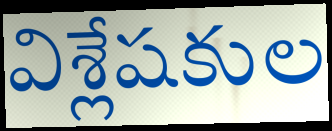
విశ్లేషకుల